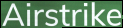
Airstrike